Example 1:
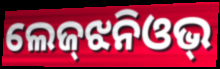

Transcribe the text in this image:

ଲେଜ୍‌ଝନିଓଭ୍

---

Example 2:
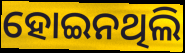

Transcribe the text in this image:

ହୋଇନଥିଲି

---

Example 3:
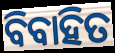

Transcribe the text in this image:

ବିବାହିତ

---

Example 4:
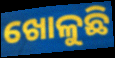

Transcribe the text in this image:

ଖୋଳୁଛି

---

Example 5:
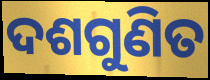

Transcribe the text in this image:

ଦଶଗୁଣିତ